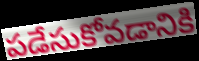
పడేసుకోవడానికి